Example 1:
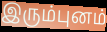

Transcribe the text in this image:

இரும்புனம்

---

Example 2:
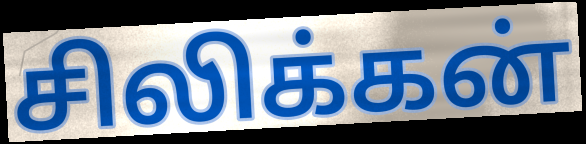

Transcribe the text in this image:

சிலிக்கன்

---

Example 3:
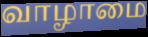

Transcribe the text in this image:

வாழாமை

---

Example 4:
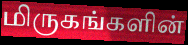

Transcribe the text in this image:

மிருகங்களின்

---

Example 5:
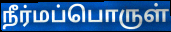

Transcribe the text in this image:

நீர்மப்பொருள்